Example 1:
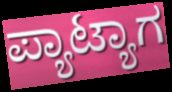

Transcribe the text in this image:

ಪ್ಯಾಟ್ಯಾಗ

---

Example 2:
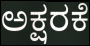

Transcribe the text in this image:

ಅಕ್ಷರಕೆ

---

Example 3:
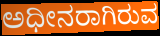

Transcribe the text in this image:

ಅಧೀನರಾಗಿರುವ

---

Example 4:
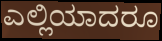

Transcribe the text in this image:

ಎಲ್ಲಿಯಾದರೂ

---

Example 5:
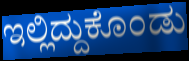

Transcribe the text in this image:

ಇಲ್ಲಿದ್ದುಕೊಂಡು